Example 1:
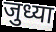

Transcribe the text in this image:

जुध्या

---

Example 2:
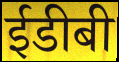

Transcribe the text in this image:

ईडीबी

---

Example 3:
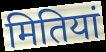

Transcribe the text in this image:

मितियां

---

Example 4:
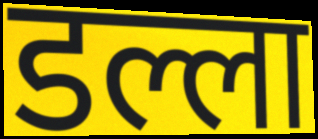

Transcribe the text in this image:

डल्ला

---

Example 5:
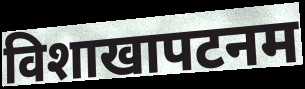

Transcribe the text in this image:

विशाखापटनम